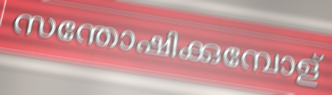
സന്തോഷിക്കുമ്പോള്